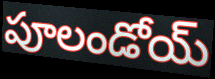
పూలండోయ్